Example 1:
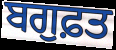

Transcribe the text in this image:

ਬਗੁਫ਼ਤ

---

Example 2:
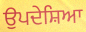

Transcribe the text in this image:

ਉਪਦੇਸ਼ਿਆ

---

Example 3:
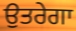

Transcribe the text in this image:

ਉਤਰੇਗਾ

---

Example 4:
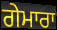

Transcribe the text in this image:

ਗੇਮਾਰਾ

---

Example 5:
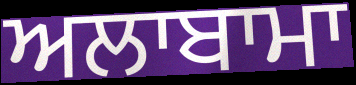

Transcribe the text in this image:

ਅਲਾਬਾਮਾ